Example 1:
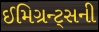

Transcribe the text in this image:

ઈમિગ્રન્ટ્સની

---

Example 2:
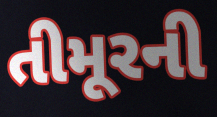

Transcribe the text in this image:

તીમૂરની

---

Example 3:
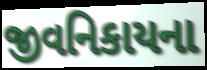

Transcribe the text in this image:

જીવનિકાયના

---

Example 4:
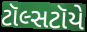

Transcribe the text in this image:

ટૉલ્સટૉયે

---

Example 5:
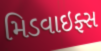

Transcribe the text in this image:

મિડવાઇફ્સ